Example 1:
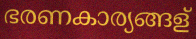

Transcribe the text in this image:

ഭരണകാര്യങ്ങള്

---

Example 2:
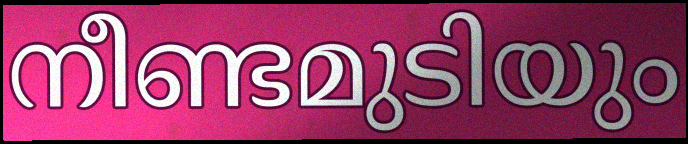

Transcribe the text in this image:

നീണ്ടമുടിയും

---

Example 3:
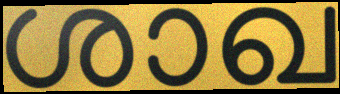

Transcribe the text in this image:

ശാഖ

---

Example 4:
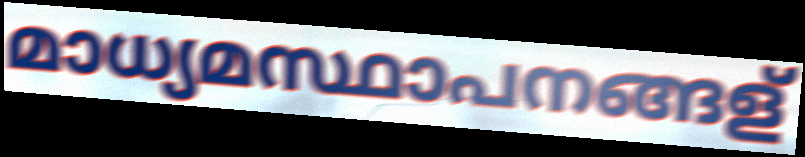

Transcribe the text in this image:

മാധ്യമസ്ഥാപനങ്ങള്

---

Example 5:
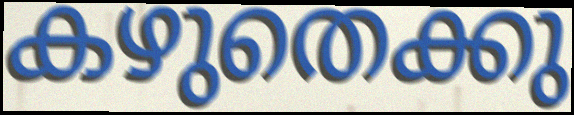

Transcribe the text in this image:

കഴുതെക്കു